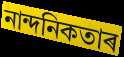
নান্দনিকতাৰ